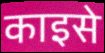
काइसे